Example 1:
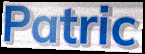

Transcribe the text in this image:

Patric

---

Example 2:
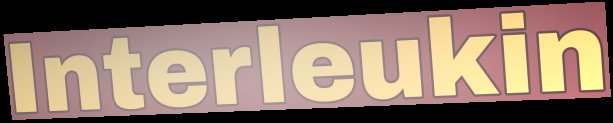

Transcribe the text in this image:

Interleukin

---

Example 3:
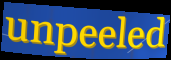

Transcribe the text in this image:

unpeeled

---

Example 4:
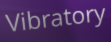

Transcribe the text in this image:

Vibratory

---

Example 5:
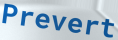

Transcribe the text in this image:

Prevert